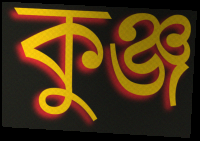
কুঞ্জ